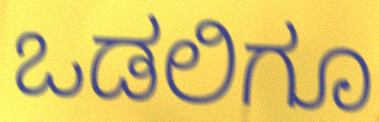
ಒಡಲಿಗೂ